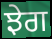
ਝੇਗ